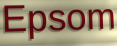
Epsom